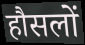
हौसलों